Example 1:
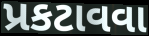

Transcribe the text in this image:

પ્રકટાવવા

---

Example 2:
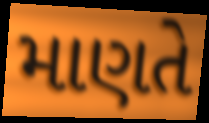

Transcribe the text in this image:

માણતે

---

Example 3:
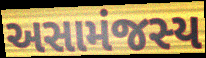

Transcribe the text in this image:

અસામંજસ્ય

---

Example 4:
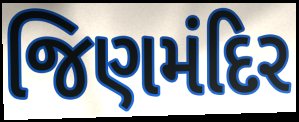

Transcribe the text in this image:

જિણમંદિર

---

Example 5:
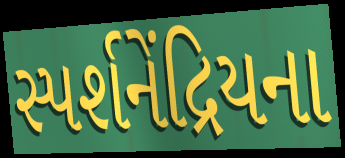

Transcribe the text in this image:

સ્પર્શનેંદ્રિયના